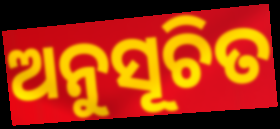
ଅନୁସୂଚିତ